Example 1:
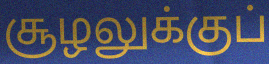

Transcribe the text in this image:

சூழலுக்குப்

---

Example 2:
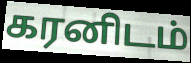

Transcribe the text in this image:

கரனிடம்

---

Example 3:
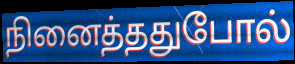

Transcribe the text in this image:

நினைத்ததுபோல்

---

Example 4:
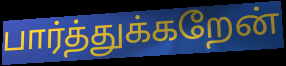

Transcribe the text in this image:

பார்த்துக்கறேன்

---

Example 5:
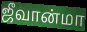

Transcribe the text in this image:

ஜீவான்மா